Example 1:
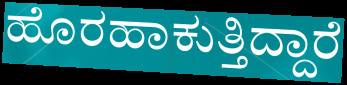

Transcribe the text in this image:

ಹೊರಹಾಕುತ್ತಿದ್ದಾರೆ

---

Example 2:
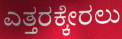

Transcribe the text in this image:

ಎತ್ತರಕ್ಕೇರಲು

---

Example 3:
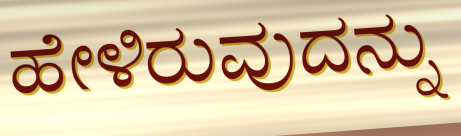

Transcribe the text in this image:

ಹೇಳಿರುವುದನ್ನು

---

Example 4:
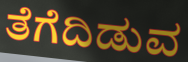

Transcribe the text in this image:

ತೆಗೆದಿಡುವ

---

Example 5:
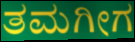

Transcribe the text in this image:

ತಮಗೀಗ